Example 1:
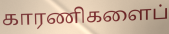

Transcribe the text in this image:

காரணிகளைப்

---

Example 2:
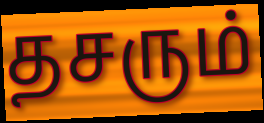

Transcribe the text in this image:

தசரும்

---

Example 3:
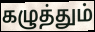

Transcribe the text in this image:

கழுத்தும்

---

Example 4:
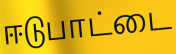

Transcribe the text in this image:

ஈடுபாட்டை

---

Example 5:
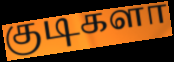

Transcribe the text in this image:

குடிகளா